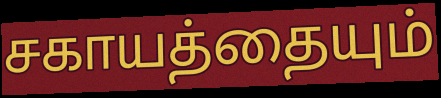
சகாயத்தையும்